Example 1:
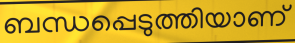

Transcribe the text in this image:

ബന്ധപ്പെടുത്തിയാണ്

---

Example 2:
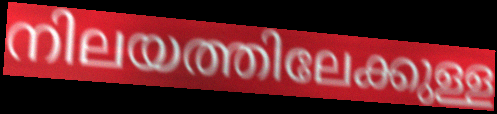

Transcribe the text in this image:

നിലയത്തിലേക്കുള്ള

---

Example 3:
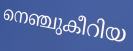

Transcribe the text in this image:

നെഞ്ചുകീറിയ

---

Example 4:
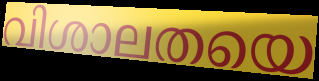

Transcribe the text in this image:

വിശാലതയെ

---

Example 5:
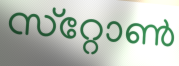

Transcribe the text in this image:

സ്‌റ്റോൺ